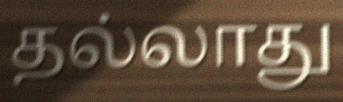
தல்லாது